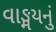
વાઙ્મયનું